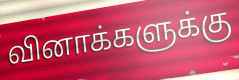
வினாக்களுக்கு